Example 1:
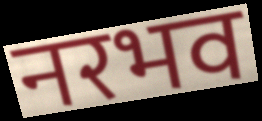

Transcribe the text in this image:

नरभव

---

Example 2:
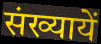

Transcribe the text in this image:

संख्यायें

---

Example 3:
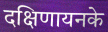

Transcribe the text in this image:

दक्षिणायनके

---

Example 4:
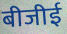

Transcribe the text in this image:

बीजीई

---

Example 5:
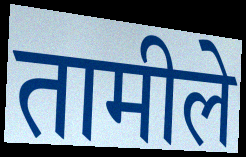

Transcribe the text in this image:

तामीले